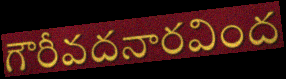
గౌరీవదనారవింద